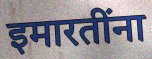
इमारतींना